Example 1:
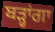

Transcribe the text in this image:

ਬੜ੍ਹਾਂਗਾ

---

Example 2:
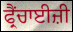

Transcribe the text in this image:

ਫ੍ਰੈਂਚਾਈਜ਼ੀ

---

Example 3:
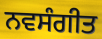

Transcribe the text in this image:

ਨਵਸੰਗੀਤ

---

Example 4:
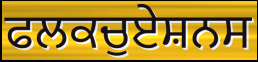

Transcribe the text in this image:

ਫਲਕਚੁਏਸ਼ਨਸ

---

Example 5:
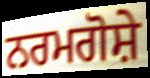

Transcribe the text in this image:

ਨਰਮਗੋਸ਼ੇ